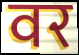
वर